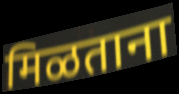
मिळताना